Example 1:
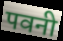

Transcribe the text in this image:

पवनी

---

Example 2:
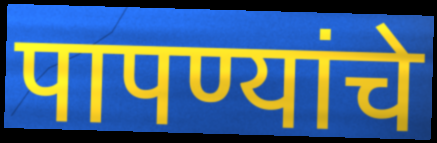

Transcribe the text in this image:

पापण्यांचे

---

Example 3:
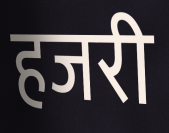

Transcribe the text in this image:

हजरी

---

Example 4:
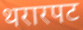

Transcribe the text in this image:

थरारपट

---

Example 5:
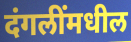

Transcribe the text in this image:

दंगलींमधील